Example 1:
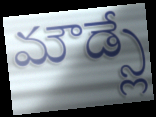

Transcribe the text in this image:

మౌడ్స్లే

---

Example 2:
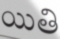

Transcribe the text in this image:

యితి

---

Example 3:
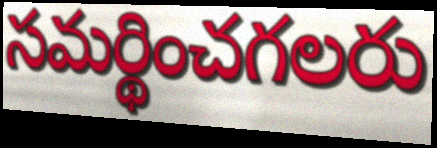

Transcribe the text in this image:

సమర్థించగలరు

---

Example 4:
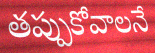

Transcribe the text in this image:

తప్పుకోవాలనే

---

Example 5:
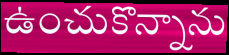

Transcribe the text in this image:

ఉంచుకొన్నాను